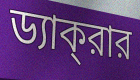
ড্যাক্‌রার